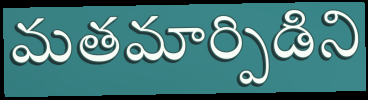
మతమార్పిడిని